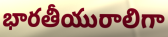
భారతీయురాలిగా